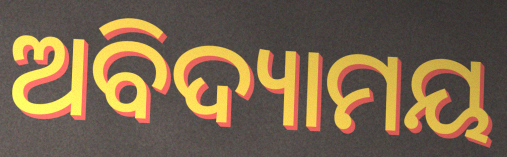
ଅବିଦ୍ୟାମୟ